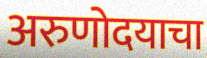
अरुणोदयाचा